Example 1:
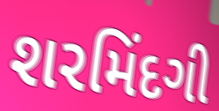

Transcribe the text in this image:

શરમિંદગી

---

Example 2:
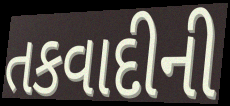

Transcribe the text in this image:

તકવાદીની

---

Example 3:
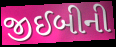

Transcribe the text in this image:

જીઈબીની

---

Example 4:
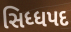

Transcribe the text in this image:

સિધ્ધપદ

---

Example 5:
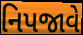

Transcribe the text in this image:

નિપજાવે